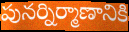
పునర్నిర్మాణానికి